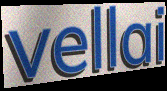
vellai